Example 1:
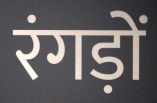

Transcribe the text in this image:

रंगड़ों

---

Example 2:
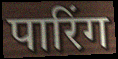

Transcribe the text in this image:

पारिंग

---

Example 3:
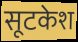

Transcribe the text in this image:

सूटकेश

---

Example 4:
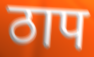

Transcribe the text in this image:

ठाप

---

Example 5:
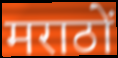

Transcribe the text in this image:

मराठों